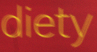
diety